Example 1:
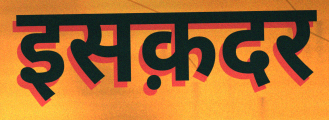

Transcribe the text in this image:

इसक़दर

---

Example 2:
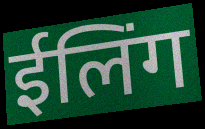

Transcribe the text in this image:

ईलिंग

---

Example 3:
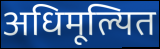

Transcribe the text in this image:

अधिमूल्यित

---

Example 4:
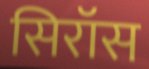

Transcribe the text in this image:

सिरॉस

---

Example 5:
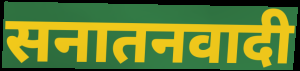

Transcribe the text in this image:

सनातनवादी